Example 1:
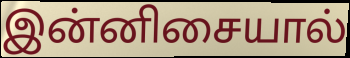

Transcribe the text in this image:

இன்னிசையால்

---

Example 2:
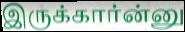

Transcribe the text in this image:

இருக்கார்ன்னு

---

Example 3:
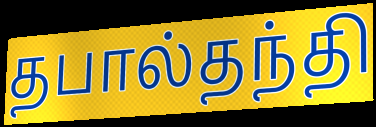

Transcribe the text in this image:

தபால்தந்தி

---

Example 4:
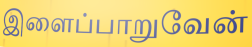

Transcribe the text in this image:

இளைப்பாறுவேன்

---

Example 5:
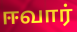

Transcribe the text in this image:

ஈவார்